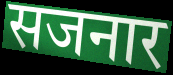
सजनार